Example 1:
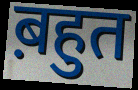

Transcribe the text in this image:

ब़हुत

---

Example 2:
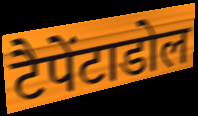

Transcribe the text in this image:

टैपेंटाडोल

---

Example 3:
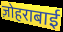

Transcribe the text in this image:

ज़ोहराबाई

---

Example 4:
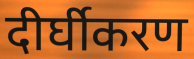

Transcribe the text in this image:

दीर्घीकरण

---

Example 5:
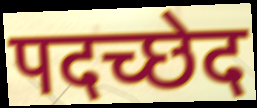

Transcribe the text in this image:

पदच्छेद